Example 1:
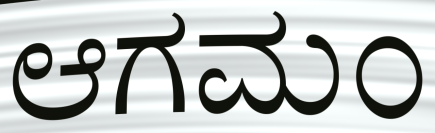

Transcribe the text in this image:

ಆಗಮಂ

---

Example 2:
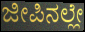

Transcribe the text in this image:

ಜೀಪಿನಲ್ಲೇ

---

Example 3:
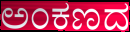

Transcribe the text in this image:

ಅಂಕಣದ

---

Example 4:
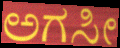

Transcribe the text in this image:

ಅಗಸೀ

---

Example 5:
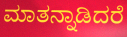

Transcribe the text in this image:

ಮಾತನ್ನಾಡಿದರೆ